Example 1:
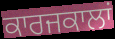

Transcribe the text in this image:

ਕਾਰਜਕਾਲਾਂ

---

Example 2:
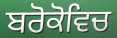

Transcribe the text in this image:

ਬਰੋਕੋਵਿਚ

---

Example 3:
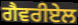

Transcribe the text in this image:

ਗੈਵਰੀਏਲ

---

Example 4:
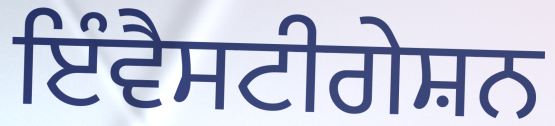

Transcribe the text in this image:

ਇੰਵੈਸਟੀਗੇਸ਼ਨ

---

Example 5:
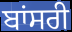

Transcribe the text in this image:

ਬਾਂਸਰੀ